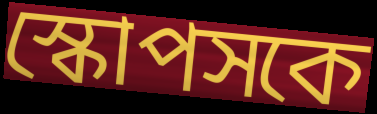
স্কোপসকে